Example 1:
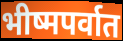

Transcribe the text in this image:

भीष्मपर्वात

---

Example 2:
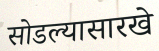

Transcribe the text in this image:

सोडल्यासारखे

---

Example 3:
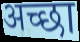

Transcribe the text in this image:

अच्छा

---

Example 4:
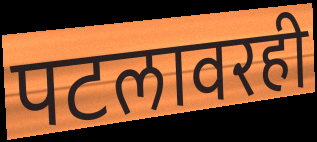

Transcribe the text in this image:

पटलावरही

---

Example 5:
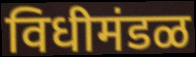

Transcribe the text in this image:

विधीमंडळ